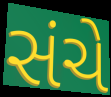
સંચે